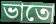
ভাতো